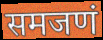
समजणं